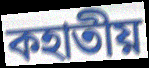
কহাতীয়